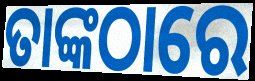
ତାଙ୍କଠାରେ